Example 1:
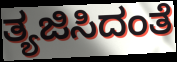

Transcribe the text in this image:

ತ್ಯಜಿಸಿದಂತೆ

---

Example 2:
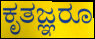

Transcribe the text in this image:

ಕೃತಜ್ಞರೂ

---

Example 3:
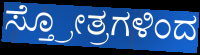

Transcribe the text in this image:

ಸ್ತ್ರೋತ್ರಗಳಿಂದ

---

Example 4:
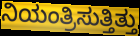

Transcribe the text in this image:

ನಿಯಂತ್ರಿಸುತ್ತಿತ್ತು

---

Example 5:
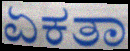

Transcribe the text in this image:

ಏಕತಾ